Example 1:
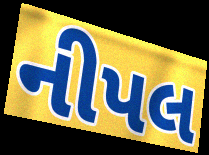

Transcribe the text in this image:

નીપલ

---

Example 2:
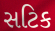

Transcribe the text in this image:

સટિક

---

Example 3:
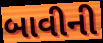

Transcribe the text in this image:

બાવીની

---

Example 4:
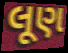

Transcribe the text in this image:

લૂણ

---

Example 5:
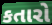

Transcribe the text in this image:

કતારો